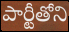
పార్టీతోని